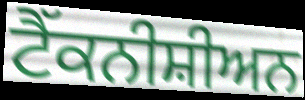
ਟੈੱਕਨੀਸ਼ੀਅਨ